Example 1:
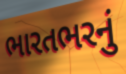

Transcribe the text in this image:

ભારતભરનું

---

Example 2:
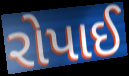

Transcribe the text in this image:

રોપાઈ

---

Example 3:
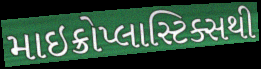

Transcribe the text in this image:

માઇક્રોપ્લાસ્ટિક્સથી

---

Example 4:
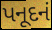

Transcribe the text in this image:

પનૂદનં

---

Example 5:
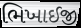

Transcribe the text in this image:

ભિખાઈજી